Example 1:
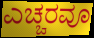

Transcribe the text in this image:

ಎಚ್ಚರವೂ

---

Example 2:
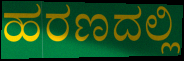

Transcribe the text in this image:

ಹರಣದಲ್ಲಿ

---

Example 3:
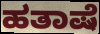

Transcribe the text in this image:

ಹತಾಷೆ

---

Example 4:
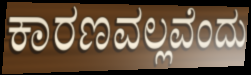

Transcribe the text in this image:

ಕಾರಣವಲ್ಲವೆಂದು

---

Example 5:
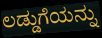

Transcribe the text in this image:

ಲಡ್ಡುಗೆಯನ್ನು